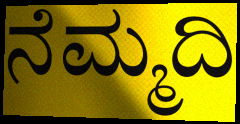
ನೆಮ್ಮದಿ